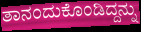
ತಾನಂದುಕೊಂಡಿದ್ದನ್ನು